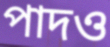
পাদও